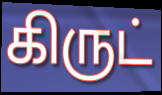
கிருட்